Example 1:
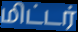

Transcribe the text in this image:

மிட்டர்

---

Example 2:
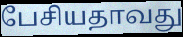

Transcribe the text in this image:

பேசியதாவது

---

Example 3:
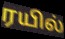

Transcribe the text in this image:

ரயில்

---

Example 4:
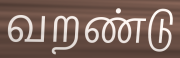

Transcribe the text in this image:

வறண்டு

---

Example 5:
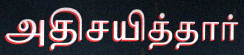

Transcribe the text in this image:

அதிசயித்தார்